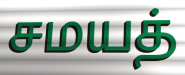
சமயத்